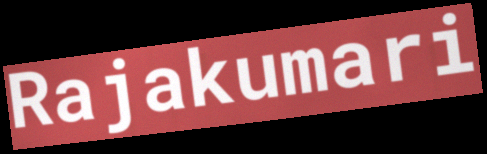
Rajakumari